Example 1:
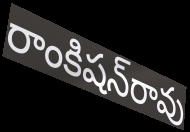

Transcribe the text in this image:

రాంకిషన్‌రావు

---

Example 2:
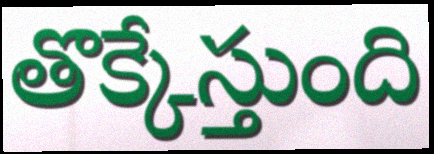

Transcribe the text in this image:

తొక్కేస్తుంది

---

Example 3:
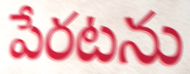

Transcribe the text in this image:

పేరటను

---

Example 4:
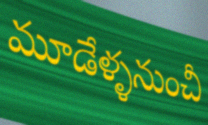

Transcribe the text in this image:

మూడేళ్ళనుంచీ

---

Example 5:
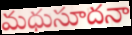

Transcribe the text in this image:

మధుసూదనా